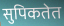
सुपिकतेत